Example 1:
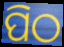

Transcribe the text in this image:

ପିଠ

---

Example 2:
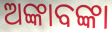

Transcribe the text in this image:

ଅଙ୍କାବଙ୍କା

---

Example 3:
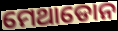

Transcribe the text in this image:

ମେଥାଡୋନ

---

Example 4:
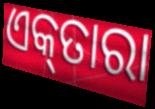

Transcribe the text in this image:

ଏକ୍‌ତାରା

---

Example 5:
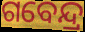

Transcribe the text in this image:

ଗବେନ୍ଦ୍ର